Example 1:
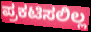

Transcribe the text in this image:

ಪ್ರಕಟಿಸಲಿಲ್ಲ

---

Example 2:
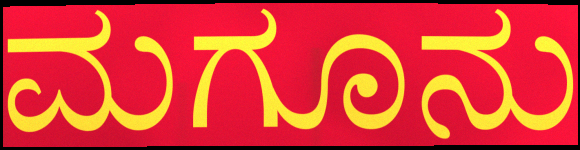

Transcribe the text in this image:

ಮಗೂನು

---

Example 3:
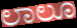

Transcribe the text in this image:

ಲಾಲೂ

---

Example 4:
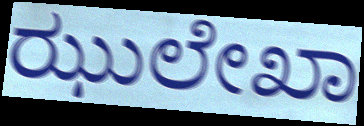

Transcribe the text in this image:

ಝುಲೇಖಾ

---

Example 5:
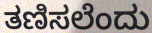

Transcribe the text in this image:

ತಣಿಸಲೆಂದು